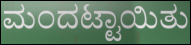
ಮಂದಟ್ಟಾಯಿತು